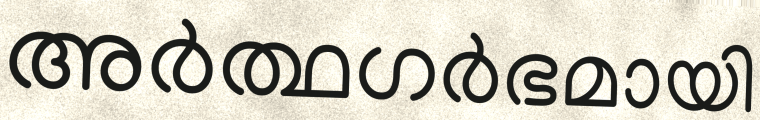
അർത്ഥഗർഭമായി